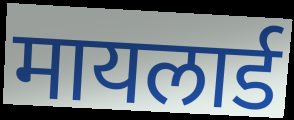
मायलार्ड